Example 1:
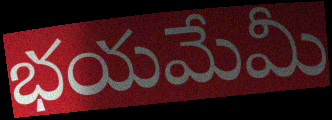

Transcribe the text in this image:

భయమేమీ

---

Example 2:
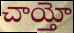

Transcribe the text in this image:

చాయ్తో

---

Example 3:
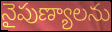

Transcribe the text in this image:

నైపుణ్యాలను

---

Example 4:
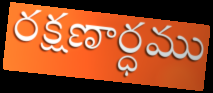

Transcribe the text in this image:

రక్షణార్ధము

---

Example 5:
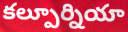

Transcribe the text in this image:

కల్పూర్నియా